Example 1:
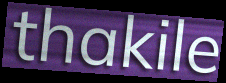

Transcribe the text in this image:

thakile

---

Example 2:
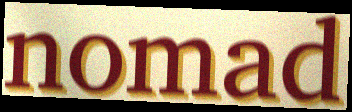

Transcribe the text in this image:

nomad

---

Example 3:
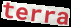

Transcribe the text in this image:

terra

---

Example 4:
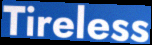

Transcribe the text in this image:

Tireless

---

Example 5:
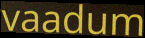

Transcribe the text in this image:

vaadum